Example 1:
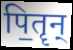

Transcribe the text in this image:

पि॒तॄन्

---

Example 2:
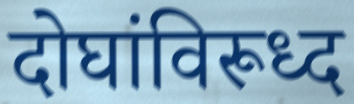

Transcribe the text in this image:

दोघांविरूध्द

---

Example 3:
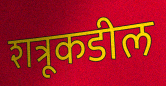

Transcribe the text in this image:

शत्रूकडील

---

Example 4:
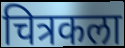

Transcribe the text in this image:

चित्रकला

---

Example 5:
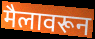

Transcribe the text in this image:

मैलावरून